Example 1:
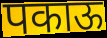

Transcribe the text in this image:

पकाऊ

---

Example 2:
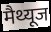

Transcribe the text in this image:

मैथ्यूज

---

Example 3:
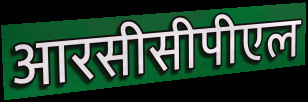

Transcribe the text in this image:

आरसीसीपीएल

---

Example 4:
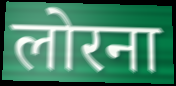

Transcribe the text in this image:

लोरना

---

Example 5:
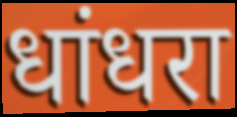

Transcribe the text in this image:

धांधरा